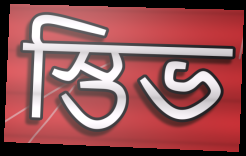
স্তিভ